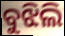
ବୁଝିଲି